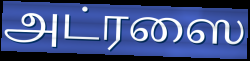
அட்ரஸை